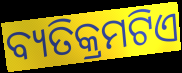
ବ୍ୟତିକ୍ରମଟିଏ